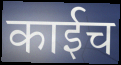
काईच